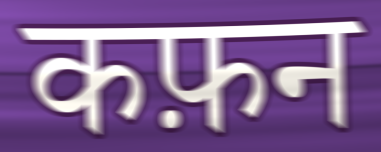
कफ़न